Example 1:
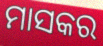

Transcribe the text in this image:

ମାସକର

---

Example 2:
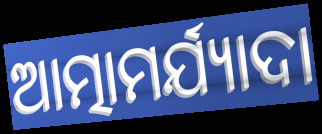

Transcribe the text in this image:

ଆତ୍ମାମର୍ଯ୍ୟାଦା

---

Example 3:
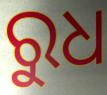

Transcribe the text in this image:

ରୁଧ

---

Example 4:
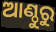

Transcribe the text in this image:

ଆଣ୍ଠୁରୁ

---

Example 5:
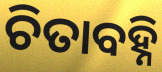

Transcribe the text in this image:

ଚିତାବହ୍ନି